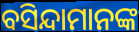
ବସିନ୍ଦାମାନଙ୍କ